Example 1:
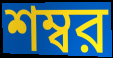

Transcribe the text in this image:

শম্বর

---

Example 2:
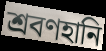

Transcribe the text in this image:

শ্রবণহানি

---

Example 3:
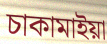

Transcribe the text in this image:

চাকামাইয়া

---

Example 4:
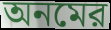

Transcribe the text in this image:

অনমের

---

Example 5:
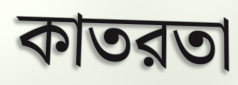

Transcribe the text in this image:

কাতরতা